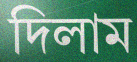
দিলাম